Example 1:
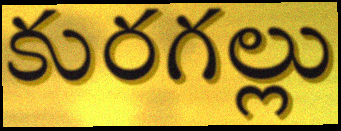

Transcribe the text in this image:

కురగల్లు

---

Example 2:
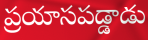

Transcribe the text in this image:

ప్రయాసపడ్డాడు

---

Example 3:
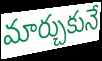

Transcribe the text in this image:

మార్చుకునే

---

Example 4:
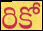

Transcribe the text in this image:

రికో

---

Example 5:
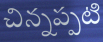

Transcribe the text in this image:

చిన్నప్పటి